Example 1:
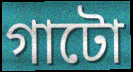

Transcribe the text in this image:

গাটো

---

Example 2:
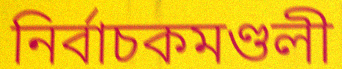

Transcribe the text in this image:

নিৰ্বাচকমণ্ডলী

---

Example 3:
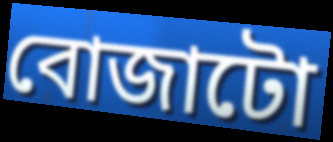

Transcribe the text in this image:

বোজাটো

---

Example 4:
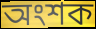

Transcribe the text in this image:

অংশক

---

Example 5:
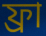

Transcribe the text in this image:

ফ্ৰা